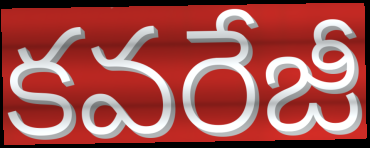
కవరేజీ